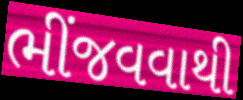
ભીંજવવાથી